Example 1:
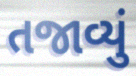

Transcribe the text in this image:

તજાવ્યું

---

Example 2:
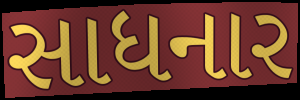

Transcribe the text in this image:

સાધનાર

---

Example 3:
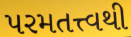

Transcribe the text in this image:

પરમતત્ત્વથી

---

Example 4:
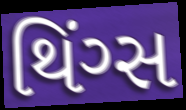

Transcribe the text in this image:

થિંગ્સ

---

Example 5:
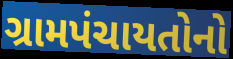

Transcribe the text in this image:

ગ્રામપંચાયતોનો